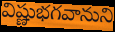
విష్ణుభగవానుని